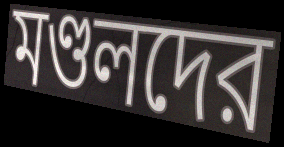
মণ্ডলদের